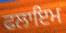
ਫਲਾਇਮ